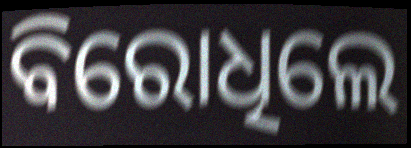
ବିରୋଧିଲେ